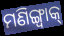
ମଣିଙ୍ଗ୍ୱାକ୍